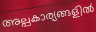
അല്പകാര്യങ്ങളിൽ